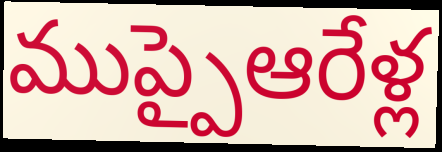
ముప్పైఆరేళ్ల